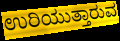
ಉರಿಯುತ್ತಾರುವ